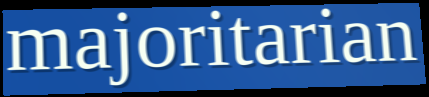
majoritarian